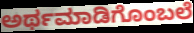
ಅರ್ಥಮಾಡಿಗೊಂಬಲೆ